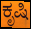
ಕೃಷಿ